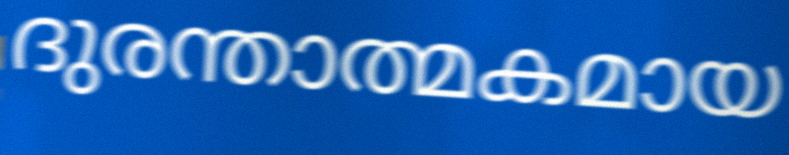
ദുരന്താത്മകമായ